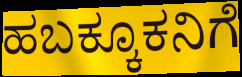
ಹಬಕ್ಕೂಕನಿಗೆ